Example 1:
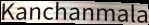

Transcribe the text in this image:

Kanchanmala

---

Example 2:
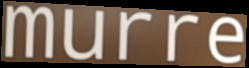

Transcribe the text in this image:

murre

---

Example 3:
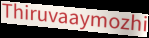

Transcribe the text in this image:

Thiruvaaymozhi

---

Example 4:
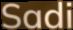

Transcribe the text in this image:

Sadi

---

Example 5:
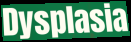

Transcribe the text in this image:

Dysplasia